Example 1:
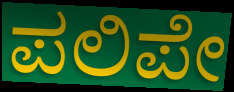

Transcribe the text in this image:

ಪಲಿಪೇ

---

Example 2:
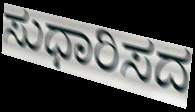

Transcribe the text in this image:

ಸುಧಾರಿಸದ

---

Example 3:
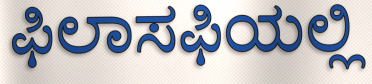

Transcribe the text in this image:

ಫಿಲಾಸಫಿಯಲ್ಲಿ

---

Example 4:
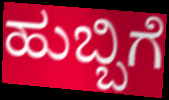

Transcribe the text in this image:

ಹುಬ್ಬಿಗೆ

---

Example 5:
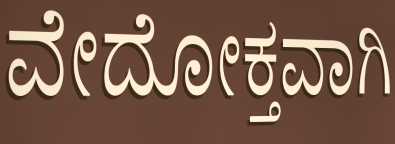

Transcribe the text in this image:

ವೇದೋಕ್ತವಾಗಿ